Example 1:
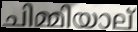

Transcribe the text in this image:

ചിമ്മിയാല്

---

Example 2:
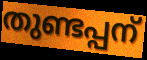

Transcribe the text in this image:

തുണ്ടപ്പന്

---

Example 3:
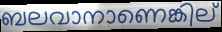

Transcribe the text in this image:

ബലവാനാണെങ്കില്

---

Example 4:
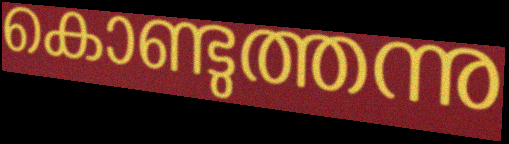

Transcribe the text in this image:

കൊണ്ടുത്തന്നു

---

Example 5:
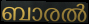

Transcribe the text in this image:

ബാരൽ